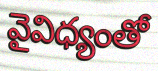
వైవిధ్యంతో